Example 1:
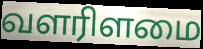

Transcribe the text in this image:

வளரிளமை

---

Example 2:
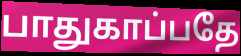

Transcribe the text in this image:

பாதுகாப்பதே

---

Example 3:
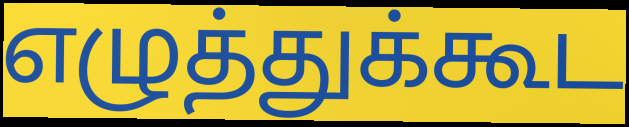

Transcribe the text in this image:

எழுத்துக்கூட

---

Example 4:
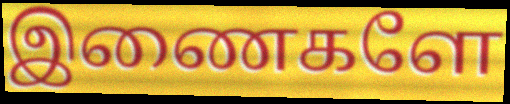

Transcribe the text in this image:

இணைகளே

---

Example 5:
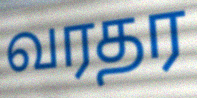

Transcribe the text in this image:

வரதர